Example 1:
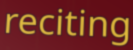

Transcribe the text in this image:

reciting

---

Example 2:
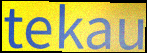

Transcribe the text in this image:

tekau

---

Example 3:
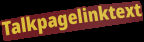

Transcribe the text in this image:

Talkpagelinktext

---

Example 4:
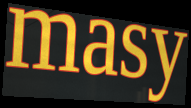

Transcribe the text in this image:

masy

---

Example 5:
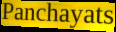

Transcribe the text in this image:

Panchayats